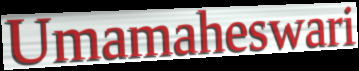
Umamaheswari